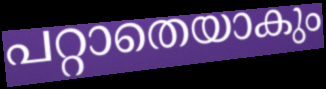
പറ്റാതെയാകും